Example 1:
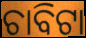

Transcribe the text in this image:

ଚାବିଟା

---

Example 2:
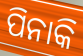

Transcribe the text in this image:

ପିନାକି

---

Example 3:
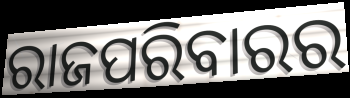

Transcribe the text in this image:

ରାଜପରିବାରର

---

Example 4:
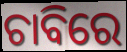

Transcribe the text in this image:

ଚାବିରେ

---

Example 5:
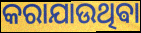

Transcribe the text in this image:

କରାଯାଉଥିଵା